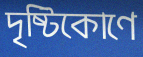
দৃষ্টিকোণে